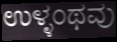
ಉಳ್ಳಂಥವು